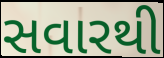
સવારથી